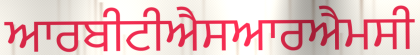
ਆਰਬੀਟੀਐਸਆਰਐਮਸੀ